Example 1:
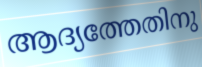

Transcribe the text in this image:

ആദ്യത്തേതിനു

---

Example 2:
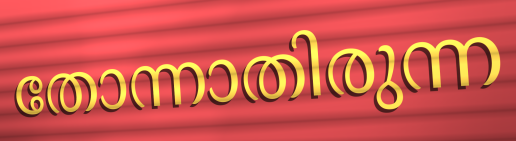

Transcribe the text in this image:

തോന്നാതിരുന്ന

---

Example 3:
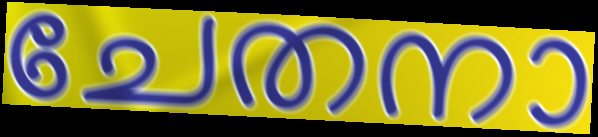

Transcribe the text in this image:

ചേതനാ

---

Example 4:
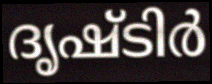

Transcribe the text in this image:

ദൃഷ്ടിർ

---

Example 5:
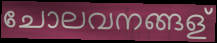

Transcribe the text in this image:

ചോലവനങ്ങള്